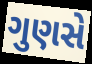
ગુણસે